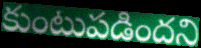
కుంటుపడిందని